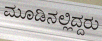
ಮೂಡಿನಲ್ಲಿದ್ದರು